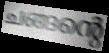
ചങ്ങന്റെ